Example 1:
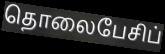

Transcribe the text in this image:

தொலைபேசிப்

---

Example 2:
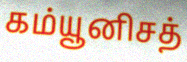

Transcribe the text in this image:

கம்யூனிசத்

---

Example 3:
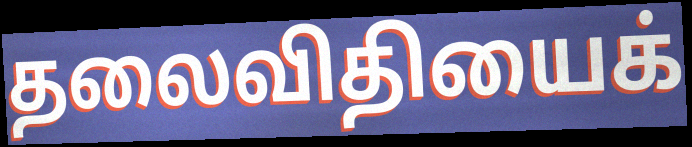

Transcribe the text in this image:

தலைவிதியைக்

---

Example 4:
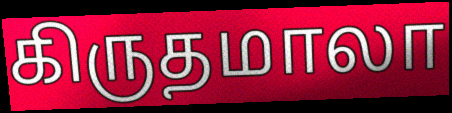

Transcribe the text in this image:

கிருதமாலா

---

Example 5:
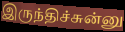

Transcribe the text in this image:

இருந்திச்சுன்னு